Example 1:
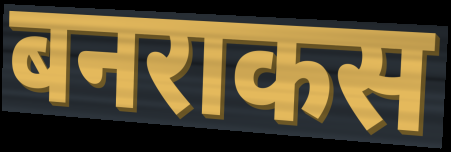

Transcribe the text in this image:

बनराकस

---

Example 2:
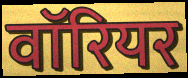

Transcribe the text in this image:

वॉरियर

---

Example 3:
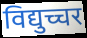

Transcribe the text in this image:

विद्युच्चर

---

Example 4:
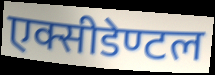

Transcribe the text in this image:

एक्सीडेण्टल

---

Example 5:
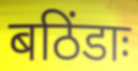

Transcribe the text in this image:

बठिंडाः